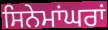
ਸਿਨੇਮਾਂਘਰਾਂ